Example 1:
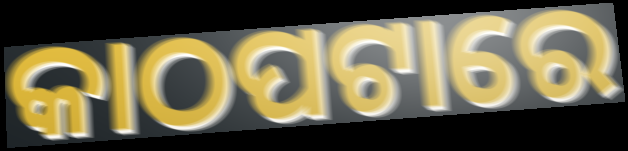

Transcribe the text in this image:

କାଠପଟାରେ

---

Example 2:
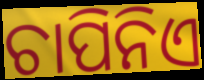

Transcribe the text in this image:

ଚାପିନିଏ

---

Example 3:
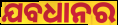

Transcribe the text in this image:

ଯବଧାନର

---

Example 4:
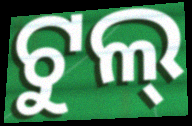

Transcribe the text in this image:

ଟୁଲ୍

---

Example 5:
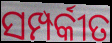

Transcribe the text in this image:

ସମ୍ପର୍କୀତ